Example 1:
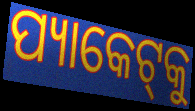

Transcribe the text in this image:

ପ୍ୟାକେଟ୍‌କୁ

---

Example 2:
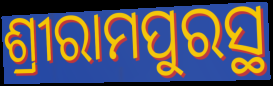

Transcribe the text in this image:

ଶ୍ରୀରାମପୁରସ୍ଥ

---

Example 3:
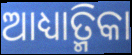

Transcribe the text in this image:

ଆଧ୍ୟାତ୍ମିକା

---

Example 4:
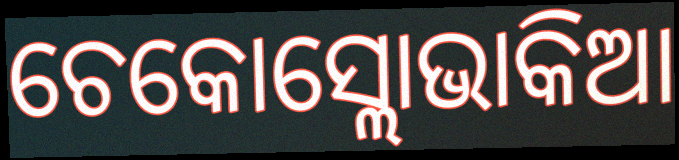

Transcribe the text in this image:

ଚେକୋସ୍ଲୋଭାକିଆ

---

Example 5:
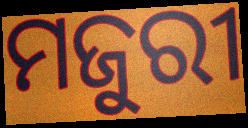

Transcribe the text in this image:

ମଜୁରୀ